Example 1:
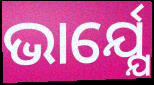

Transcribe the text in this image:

ଭାର୍ଯ୍ଯେ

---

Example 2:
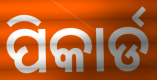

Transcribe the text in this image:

ପିକାର୍ଡ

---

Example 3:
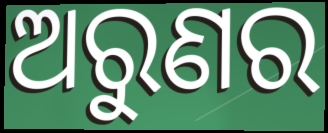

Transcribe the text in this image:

ଅରୁଣର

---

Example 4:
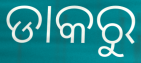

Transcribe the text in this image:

ଡାକରୁ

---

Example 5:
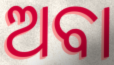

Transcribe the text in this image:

ଅବା